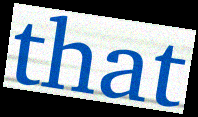
that